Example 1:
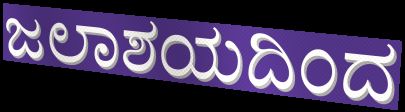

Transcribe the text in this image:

ಜಲಾಶಯದಿಂದ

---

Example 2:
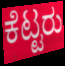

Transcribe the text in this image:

ಕೆಟ್ಟರು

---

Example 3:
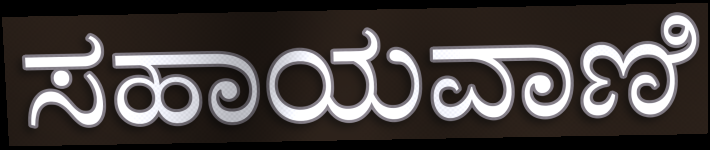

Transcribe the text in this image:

ಸಹಾಯವಾಣಿ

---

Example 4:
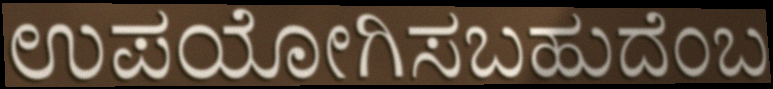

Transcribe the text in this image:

ಉಪಯೋಗಿಸಬಹುದೆಂಬ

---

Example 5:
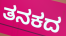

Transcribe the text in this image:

ತನಕದ